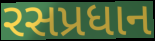
રસપ્રધાન